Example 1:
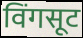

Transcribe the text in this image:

विंगसूट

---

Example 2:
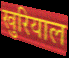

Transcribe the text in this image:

खुरियाल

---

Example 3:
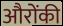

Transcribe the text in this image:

औरोंकी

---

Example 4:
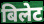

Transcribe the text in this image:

बिलेट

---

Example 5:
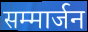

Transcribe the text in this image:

सम्मार्जन